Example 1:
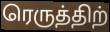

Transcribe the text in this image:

ரெருத்திற்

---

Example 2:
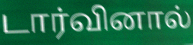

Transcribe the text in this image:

டார்வினால்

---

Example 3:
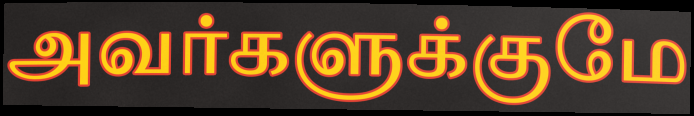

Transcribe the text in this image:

அவர்களுக்குமே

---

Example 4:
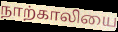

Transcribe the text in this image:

நாற்காலியை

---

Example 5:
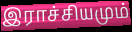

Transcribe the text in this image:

இராச்சியமும்